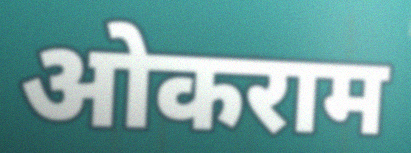
ओकराम